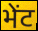
भेंट